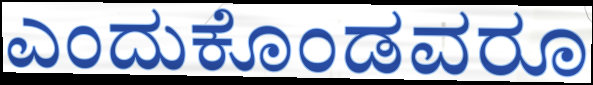
ಎಂದುಕೊಂಡವರೂ